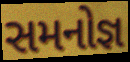
સમનોજ્ઞ